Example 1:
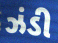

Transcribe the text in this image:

ઝંડી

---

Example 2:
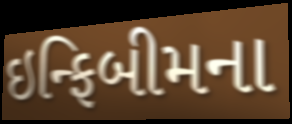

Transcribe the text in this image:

ઇન્ફિબીમના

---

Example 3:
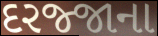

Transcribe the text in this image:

દરજ્જાના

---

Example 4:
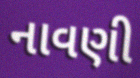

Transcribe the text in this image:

નાવણી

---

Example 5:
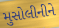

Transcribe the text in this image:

મુસોલીનીને